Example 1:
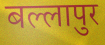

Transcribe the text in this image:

बल्लापुर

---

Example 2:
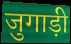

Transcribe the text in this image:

जुगाड़ी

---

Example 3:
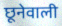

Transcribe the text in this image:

छूनेवाली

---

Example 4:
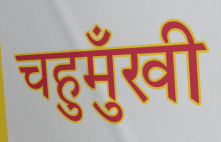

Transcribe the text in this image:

चहुमुँखी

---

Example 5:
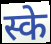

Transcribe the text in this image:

स्के